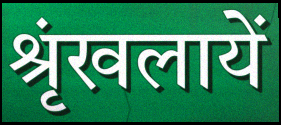
श्रृंखलायें